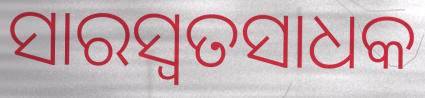
ସାରସ୍ଵତସାଧକ